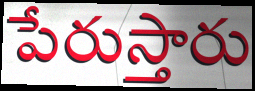
పేరుస్తారు